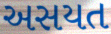
અસયત